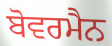
ਬੋਵਰਮੈਨ